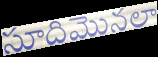
సూదిమొనలా